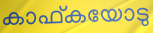
കാഫ്കയോടു